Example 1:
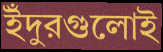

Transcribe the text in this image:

ইঁদুরগুলোই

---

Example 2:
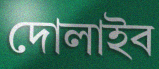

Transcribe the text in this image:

দোলাইব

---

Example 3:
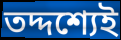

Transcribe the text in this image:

তদ্দশ্যেই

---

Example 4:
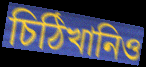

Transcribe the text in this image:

চিঠিখানিও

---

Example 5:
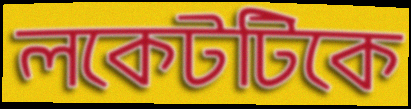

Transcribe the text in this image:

লকেটটিকে